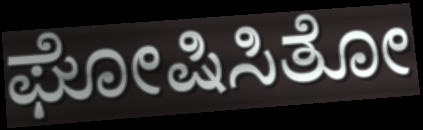
ಘೋಷಿಸಿತೋ